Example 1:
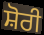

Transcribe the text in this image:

ਸ਼ੋਰੀ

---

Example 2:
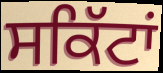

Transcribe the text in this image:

ਸਕਿੱਟਾਂ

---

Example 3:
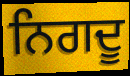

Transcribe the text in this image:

ਨਿਗਦੂ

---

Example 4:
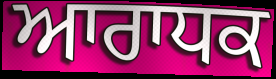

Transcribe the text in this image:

ਆਰਾਧਕ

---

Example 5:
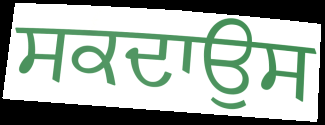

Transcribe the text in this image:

ਸਕਦਾਉਸ